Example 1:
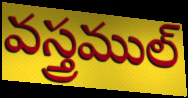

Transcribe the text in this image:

వస్త్రముల్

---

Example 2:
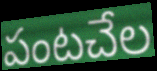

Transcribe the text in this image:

పంటచేల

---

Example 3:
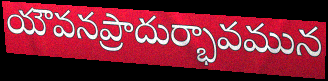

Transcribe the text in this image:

యౌవనప్రాదుర్భావమున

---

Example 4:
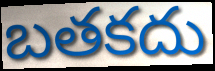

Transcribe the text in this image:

బతకదు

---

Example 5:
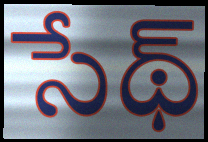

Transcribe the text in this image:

సేథ్